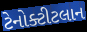
ટેનોક્ટીટલાન